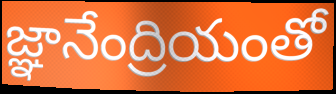
జ్ఞానేంద్రియంతో